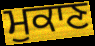
ਮੁਕਾਣ